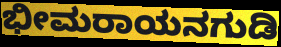
ಭೀಮರಾಯನಗುಡಿ